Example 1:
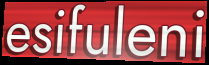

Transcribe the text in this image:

esifuleni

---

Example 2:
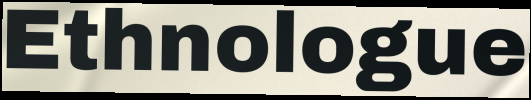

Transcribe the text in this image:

Ethnologue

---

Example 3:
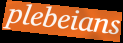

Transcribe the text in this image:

plebeians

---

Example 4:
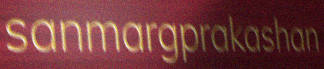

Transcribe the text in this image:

sanmargprakashan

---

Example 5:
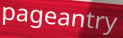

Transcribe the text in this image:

pageantry